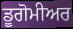
ਡੂਗੋਮੀਅਰ